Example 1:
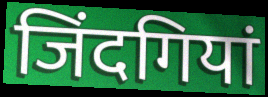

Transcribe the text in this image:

जिंदगियां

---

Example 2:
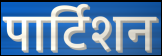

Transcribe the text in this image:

पार्टिशन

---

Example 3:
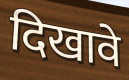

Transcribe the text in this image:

दिखावे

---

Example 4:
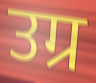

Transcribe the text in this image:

उग्र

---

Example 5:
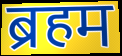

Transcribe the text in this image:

ब्रहम